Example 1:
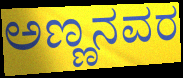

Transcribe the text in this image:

ಅಣ್ಣನವರ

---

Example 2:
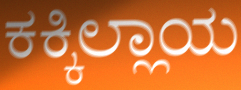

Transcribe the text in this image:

ಕಕ್ಕಿಲ್ಲಾಯ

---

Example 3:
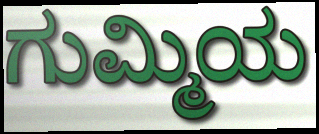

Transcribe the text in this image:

ಗುಮ್ಮಿಯ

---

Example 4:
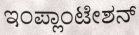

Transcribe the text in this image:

ಇಂಪ್ಲಾಂಟೇಶನ್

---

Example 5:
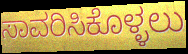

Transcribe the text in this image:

ಸಾವರಿಸಿಕೊಳ್ಳಲು